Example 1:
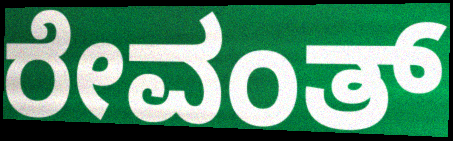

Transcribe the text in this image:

ರೇವಂತ್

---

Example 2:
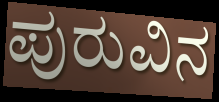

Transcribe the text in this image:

ಪುರುವಿನ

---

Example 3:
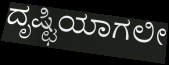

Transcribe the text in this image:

ದೃಷ್ಟಿಯಾಗಲೀ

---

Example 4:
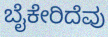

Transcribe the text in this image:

ಬೈಕೇರಿದೆವು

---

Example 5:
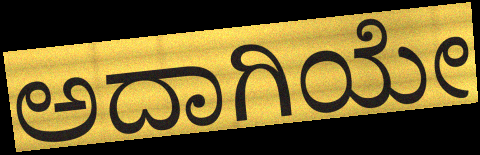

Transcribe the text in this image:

ಅದಾಗಿಯೇ